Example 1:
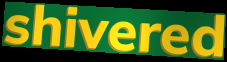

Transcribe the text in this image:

shivered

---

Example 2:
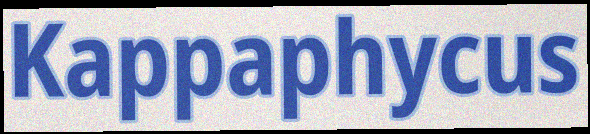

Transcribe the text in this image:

Kappaphycus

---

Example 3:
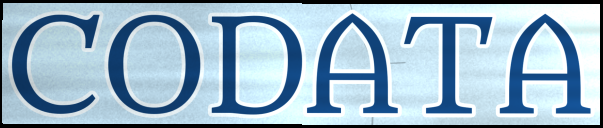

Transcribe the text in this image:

CODATA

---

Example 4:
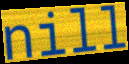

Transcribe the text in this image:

nill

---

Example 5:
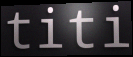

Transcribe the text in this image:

titi